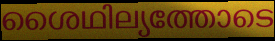
ശൈഥില്യത്തോടെ